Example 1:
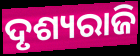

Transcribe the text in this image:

ଦୃଶ୍ୟରାଜି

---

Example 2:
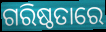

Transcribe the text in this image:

ଗରିଷ୍ଠତାରେ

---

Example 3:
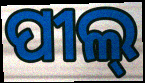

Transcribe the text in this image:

ପୀଲ୍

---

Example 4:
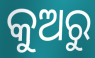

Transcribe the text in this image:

କୁଅରୁ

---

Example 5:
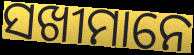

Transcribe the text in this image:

ସଖୀମାନେ